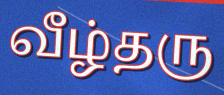
வீழ்தரு